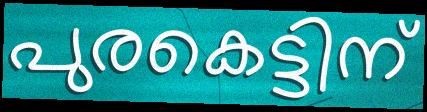
പുരകെട്ടിന്